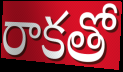
రాకతో